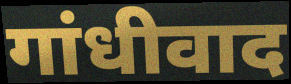
गांधीवाद